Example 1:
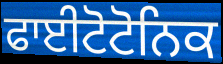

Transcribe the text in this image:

ਫਾਈਟੋਟੋਨਿਕ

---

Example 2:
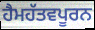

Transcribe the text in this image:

ਹੈਮਹੱਤਵਪੂਰਨ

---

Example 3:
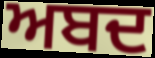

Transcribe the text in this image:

ਅਬਦ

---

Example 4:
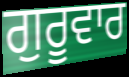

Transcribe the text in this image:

ਗੁਰੂਵਾਰ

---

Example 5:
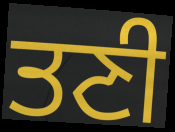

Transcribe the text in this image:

ਤਣੀ